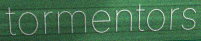
tormentors